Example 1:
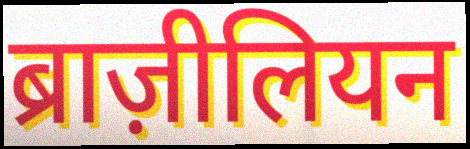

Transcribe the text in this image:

ब्राज़ीलियन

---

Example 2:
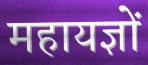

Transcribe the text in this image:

महायज्ञों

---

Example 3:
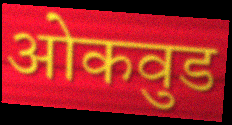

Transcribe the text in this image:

ओकवुड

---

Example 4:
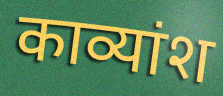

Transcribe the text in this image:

काव्यांश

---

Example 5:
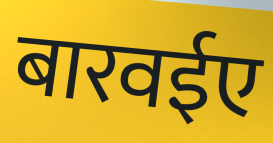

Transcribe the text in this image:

बारवईए